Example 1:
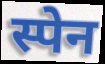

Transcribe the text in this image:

स्पेन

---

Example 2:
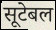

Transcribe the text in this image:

सूटेबल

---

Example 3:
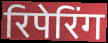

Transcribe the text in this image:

रिपेरिंग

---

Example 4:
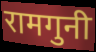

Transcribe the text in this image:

रामगुनी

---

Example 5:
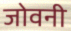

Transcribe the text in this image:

जोवनी